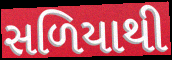
સળિયાથી